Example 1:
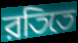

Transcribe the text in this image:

রতিতে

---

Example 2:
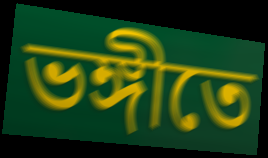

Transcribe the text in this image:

ভঙ্গীতে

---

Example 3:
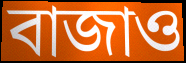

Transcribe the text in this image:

বাজাও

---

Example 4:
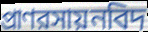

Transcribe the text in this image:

প্রাণরসায়নবিদ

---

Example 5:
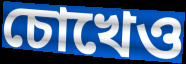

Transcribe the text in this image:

চোখেও